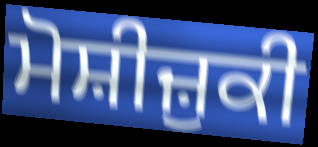
ਮੋਸ਼ੀਜ਼ੁਕੀ